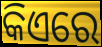
କିଏରେ